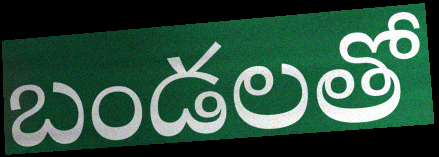
బండలతో